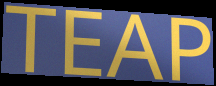
TEAP